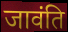
जावंति